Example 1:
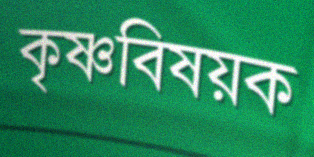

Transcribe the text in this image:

কৃষ্ণবিষয়ক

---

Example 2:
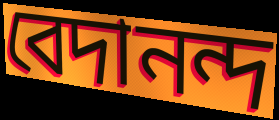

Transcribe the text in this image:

বেদানন্দ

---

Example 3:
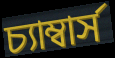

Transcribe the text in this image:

চ্যাম্বার্স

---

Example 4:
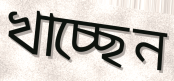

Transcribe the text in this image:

খাচ্ছেন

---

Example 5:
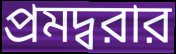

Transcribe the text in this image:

প্রমদ্বরার